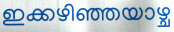
ഇക്കഴിഞ്ഞയാഴ്ച